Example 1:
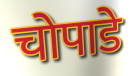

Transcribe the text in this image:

चोपाडे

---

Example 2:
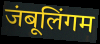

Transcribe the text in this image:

जंबूलिंगम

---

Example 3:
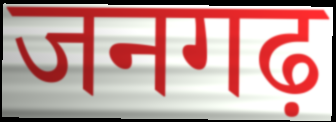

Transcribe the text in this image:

जनगढ़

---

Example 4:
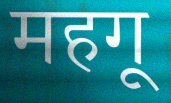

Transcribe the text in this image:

महगू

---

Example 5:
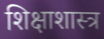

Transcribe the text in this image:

शिक्षाशास्त्र